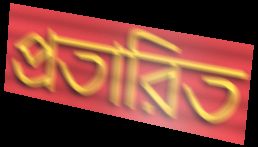
প্রতারিত